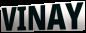
VINAY